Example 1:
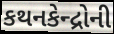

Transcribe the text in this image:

કથનકેન્દ્રોની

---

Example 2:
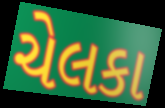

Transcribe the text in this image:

ચેલકા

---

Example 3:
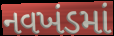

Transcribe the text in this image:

નવખંડમાં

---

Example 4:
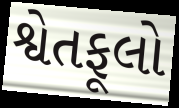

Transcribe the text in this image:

શ્વેતફૂલો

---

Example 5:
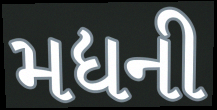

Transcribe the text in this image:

મદ્યની